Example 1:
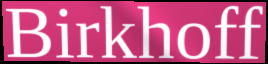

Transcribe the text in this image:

Birkhoff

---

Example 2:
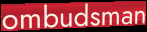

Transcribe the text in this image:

ombudsman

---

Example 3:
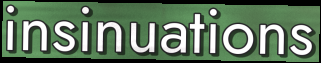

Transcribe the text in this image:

insinuations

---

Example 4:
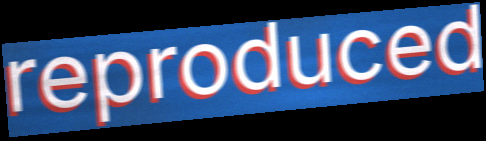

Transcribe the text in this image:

reproduced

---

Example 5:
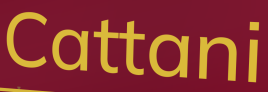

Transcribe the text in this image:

Cattani